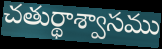
చతుర్థాశ్వాసము